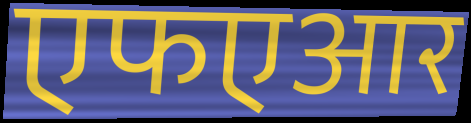
एफएआर